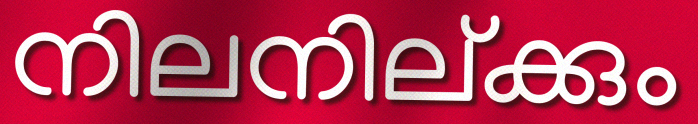
നിലനില്ക്കും